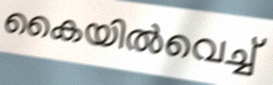
കൈയിൽവെച്ച്